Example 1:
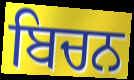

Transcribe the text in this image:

ਬਿਚਨ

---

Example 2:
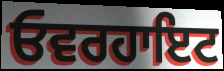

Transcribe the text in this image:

ਓਵਰਹਾਇਟ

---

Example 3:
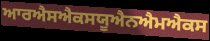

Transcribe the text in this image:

ਆਰਐਸਐਕਸਯੂਐਨਐਮਐਕਸ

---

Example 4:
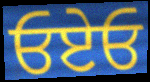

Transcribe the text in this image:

ਓਏਓ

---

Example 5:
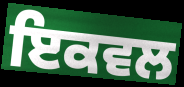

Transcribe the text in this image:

ਇਕਵਲ